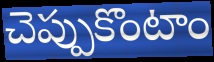
చెప్పుకొంటాం